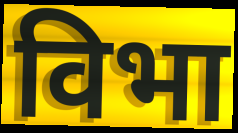
विभा